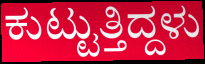
ಕುಟ್ಟುತ್ತಿದ್ದಳು